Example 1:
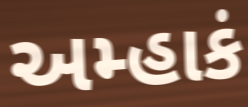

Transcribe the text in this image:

અમ્હાકં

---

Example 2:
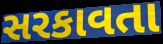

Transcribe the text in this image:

સરકાવતા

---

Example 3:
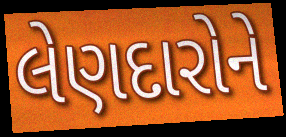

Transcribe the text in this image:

લેણદારોને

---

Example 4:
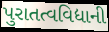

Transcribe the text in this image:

પુરાતત્વવિદ્યાની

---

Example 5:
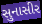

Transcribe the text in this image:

સુનાસીર